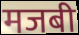
मजबी